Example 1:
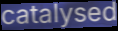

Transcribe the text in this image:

catalysed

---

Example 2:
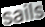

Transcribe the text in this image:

sails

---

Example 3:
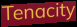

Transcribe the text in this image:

Tenacity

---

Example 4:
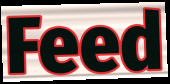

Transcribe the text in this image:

Feed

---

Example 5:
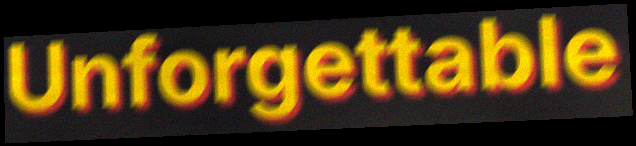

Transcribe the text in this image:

Unforgettable